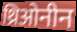
थ्रिओनीन